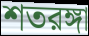
শতরঙ্গা